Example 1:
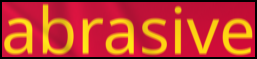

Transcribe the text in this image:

abrasive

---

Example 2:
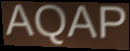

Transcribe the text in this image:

AQAP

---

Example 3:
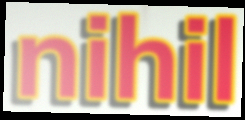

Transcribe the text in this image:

nihil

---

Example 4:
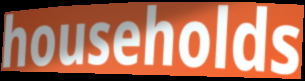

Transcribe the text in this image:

households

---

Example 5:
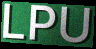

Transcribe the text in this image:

LPU